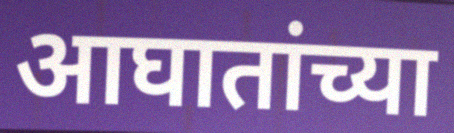
आघातांच्या